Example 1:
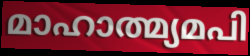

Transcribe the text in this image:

മാഹാത്മ്യമപി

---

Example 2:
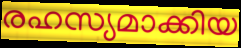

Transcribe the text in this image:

രഹസ്യമാക്കിയ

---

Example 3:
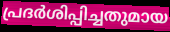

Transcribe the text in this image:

പ്രദർശിപ്പിച്ചതുമായ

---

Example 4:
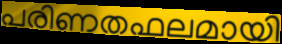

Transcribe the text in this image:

പരിണതഫലമായി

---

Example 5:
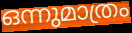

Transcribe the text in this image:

ഒന്നുമാത്രം